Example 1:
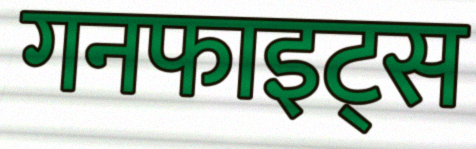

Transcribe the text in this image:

गनफाइट्स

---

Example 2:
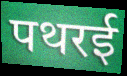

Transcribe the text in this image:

पथरई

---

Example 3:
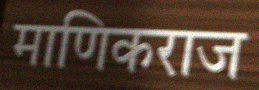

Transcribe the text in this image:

माणिकराज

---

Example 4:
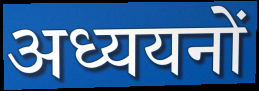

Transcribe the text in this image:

अध्ययनों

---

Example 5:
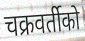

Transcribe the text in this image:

चक्रवर्तीको